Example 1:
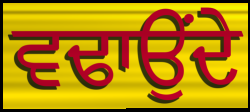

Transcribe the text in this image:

ਵਢਾਉਂਦੇ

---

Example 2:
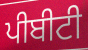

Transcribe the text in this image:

ਪੀਬੀਟੀ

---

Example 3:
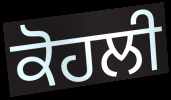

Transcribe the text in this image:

ਕੋਹਲੀ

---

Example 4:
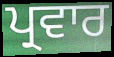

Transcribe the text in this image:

ਪ੍ਰਵਾਰ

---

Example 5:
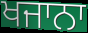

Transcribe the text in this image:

ਖਜਾਨਾ